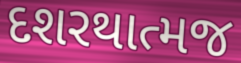
દશરથાત્મજ